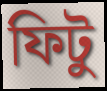
ফিটু